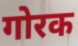
गोरक